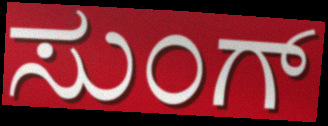
ಸುಂಗ್